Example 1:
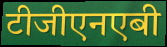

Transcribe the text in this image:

टीजीएनएबी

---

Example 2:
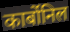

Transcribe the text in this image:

कार्बोनिल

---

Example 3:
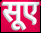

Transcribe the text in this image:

सूए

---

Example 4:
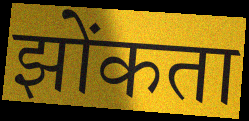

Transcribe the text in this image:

झोंकता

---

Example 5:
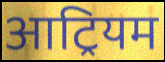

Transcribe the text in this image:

आट्रियम